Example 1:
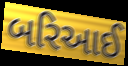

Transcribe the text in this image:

બરિઆઈ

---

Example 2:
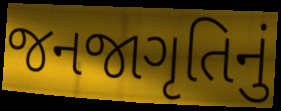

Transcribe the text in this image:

જનજાગૃતિનું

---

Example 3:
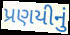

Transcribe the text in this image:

પ્રણયીનું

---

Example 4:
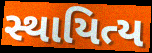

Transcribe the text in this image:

સ્થાયિત્ય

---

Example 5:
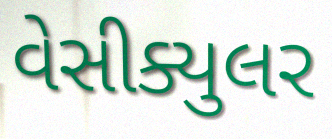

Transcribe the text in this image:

વેસીક્યુલર